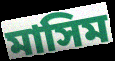
মাসিম